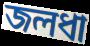
জলধা